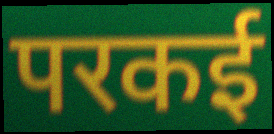
परकई